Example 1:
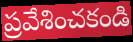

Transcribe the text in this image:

ప్రవేశించకండి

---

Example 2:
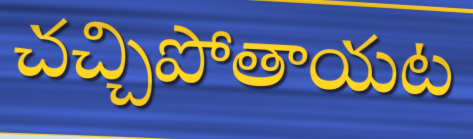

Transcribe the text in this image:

చచ్చిపోతాయట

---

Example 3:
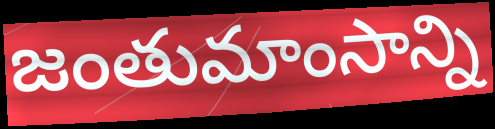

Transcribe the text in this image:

జంతుమాంసాన్ని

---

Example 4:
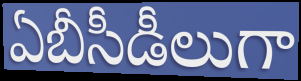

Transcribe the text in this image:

ఏబీసీడీలుగా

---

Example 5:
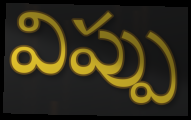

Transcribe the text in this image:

విప్పు